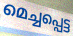
മെച്ചപ്പെട്ട